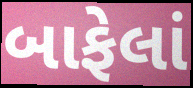
બાફેલાં